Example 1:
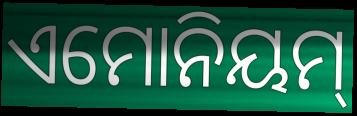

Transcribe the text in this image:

ଏମୋନିୟମ୍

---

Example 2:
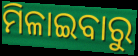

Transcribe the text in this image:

ମିଳାଇବାରୁ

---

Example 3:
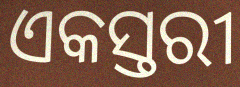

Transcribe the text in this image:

ଏକସ୍ତରୀ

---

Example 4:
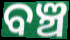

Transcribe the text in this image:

ବଞ୍ଚ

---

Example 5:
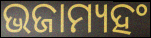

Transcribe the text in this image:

ଭଜାମ୍ୟହଂ